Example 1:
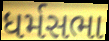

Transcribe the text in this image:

ધર્મસભા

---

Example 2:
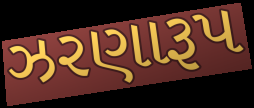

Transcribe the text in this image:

ઝરણારૂપ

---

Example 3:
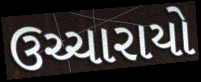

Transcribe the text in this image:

ઉચ્ચારાયો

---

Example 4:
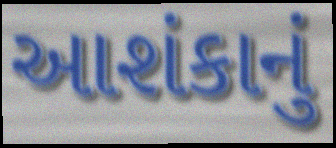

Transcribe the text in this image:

આશંકાનું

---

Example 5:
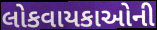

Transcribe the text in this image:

લોકવાયકાઓની